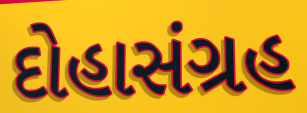
દોહાસંગ્રહ